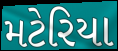
મટેરિયા